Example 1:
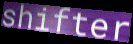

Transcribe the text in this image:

shifter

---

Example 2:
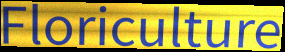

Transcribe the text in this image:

Floriculture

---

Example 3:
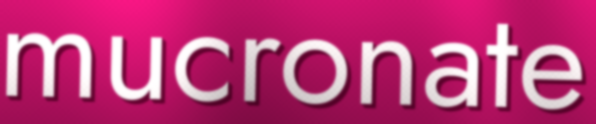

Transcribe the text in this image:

mucronate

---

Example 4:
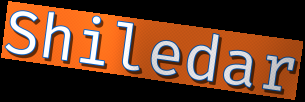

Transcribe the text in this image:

Shiledar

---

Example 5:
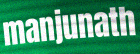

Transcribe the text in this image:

manjunath